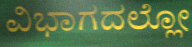
ವಿಭಾಗದಲ್ಲೋ